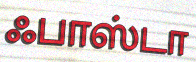
ஃபாஸ்டா